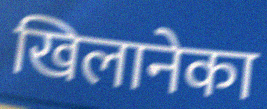
खिलानेका